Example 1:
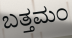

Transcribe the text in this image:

ಬತ್ತಮಂ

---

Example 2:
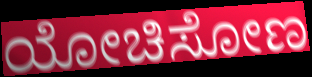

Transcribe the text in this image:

ಯೋಚಿಸೋಣ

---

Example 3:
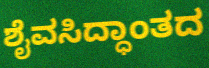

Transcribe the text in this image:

ಶೈವಸಿದ್ಧಾಂತದ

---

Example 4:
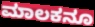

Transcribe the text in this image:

ಮಾಲಕನೂ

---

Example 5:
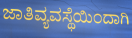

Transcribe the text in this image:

ಜಾತಿವ್ಯವಸ್ಥೆಯಿಂದಾಗಿ